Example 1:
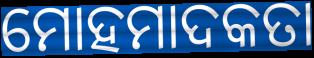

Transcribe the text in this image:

ମୋହମାଦକତା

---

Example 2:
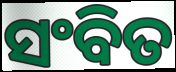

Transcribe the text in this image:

ସଂବିତ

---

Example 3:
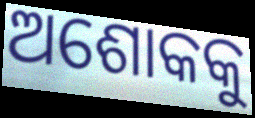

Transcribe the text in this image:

ଅଶୋକକୁ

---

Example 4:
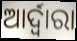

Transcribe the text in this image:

ଆର୍ଦ୍ୱାରା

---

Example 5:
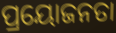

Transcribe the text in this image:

ପ୍ରୟୋଜନତା